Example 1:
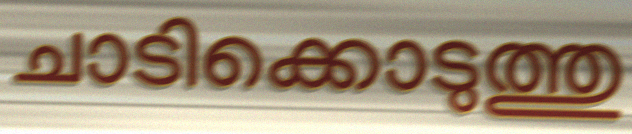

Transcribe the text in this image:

ചാടിക്കൊടുത്തു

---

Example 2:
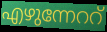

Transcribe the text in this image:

എഴുന്നേററ്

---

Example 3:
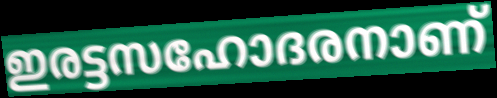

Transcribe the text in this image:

ഇരട്ടസഹോദരനാണ്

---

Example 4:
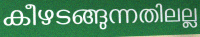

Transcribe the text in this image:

കീഴടങ്ങുന്നതിലല്ല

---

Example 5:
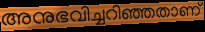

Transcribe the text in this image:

അനുഭവിച്ചറിഞ്ഞതാണ്